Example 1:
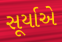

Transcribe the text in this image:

સૂર્યાએ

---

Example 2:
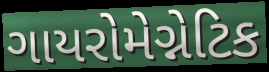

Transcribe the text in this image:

ગાયરોમેગ્નેટિક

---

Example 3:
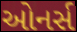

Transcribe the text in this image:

ઓનર્સ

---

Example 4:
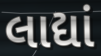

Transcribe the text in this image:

લાદ્યાં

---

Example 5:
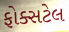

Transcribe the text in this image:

ફોક્સટેલ